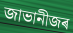
জাভানীজৰ